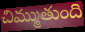
చిమ్ముతుంది